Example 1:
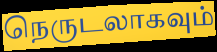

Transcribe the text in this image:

நெருடலாகவும்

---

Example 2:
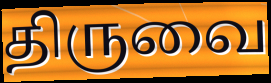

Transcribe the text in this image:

திருவை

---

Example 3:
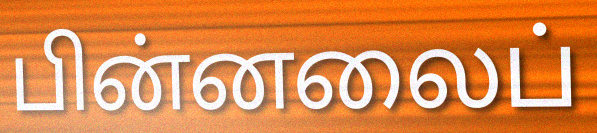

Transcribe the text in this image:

பின்னலைப்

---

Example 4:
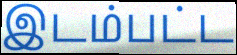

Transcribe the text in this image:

இடம்பட்ட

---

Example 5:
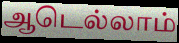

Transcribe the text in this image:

ஆடெல்லாம்